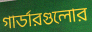
গার্ডারগুলোর